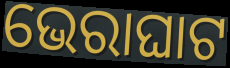
ଭେରାଘାଟ